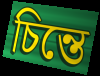
চিন্তে